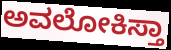
ಅವಲೋಕಿಸ್ತಾ